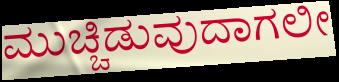
ಮುಚ್ಚಿಡುವುದಾಗಲೀ